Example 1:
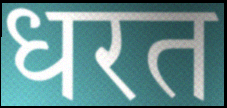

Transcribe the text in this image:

धरत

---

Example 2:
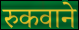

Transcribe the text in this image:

रुकवाने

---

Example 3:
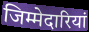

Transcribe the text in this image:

जिम्मेदारियां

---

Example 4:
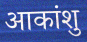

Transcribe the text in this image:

आकांशु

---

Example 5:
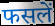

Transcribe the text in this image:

फसलें